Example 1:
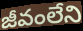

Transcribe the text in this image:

జీవంలేని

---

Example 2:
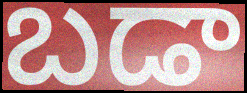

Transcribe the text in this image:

బడా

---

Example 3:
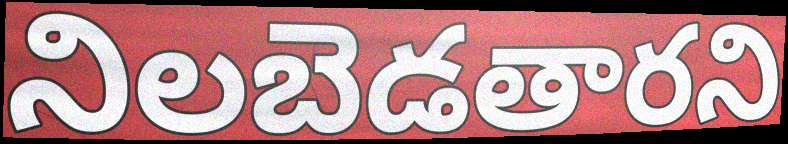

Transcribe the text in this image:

నిలబెడతారని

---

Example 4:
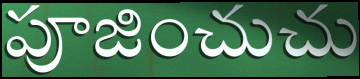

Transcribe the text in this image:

పూజించుచు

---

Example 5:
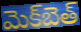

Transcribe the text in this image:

మెక్‌బెత్